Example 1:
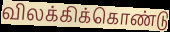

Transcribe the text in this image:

விலக்கிக்கொண்டு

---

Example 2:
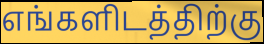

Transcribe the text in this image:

எங்களிடத்திற்கு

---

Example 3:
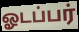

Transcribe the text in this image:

ஓடப்பர்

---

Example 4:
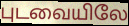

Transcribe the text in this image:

புடவையிலே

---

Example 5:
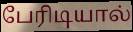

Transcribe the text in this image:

பேரிடியால்